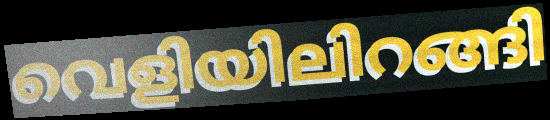
വെളിയിലിറങ്ങി